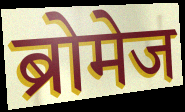
ब्रोमेज